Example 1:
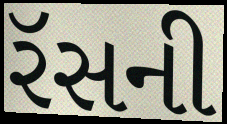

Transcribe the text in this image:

રૅસની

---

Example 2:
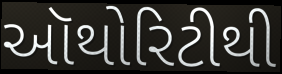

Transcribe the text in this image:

ઑથોરિટીથી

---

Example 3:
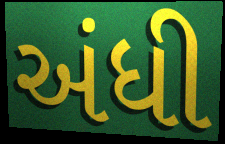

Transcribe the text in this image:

અંધી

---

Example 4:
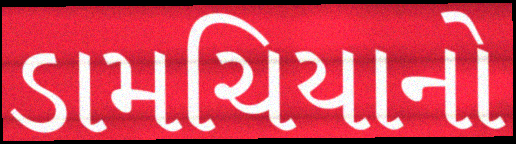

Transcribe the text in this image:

ડામચિયાનો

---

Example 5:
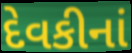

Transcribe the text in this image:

દેવકીનાં